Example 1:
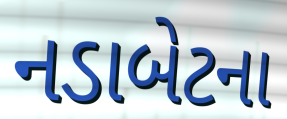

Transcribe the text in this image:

નડાબેટના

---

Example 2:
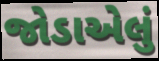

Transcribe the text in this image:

જોડાએલું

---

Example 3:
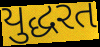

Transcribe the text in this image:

યુદ્ધરત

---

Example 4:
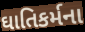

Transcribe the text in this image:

ઘાતિકર્મના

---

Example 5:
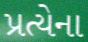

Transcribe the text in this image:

પ્રત્યેના